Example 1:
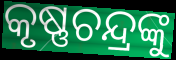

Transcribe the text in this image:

କୃଷ୍ଣଚନ୍ଦ୍ରଙ୍କୁ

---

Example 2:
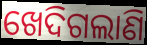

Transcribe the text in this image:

ଖେଦିଗଲାଣି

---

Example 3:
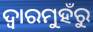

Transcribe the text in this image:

ଦ୍ଵାରମୁହଁରୁ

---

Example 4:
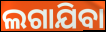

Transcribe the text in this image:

ଲଗାଯିବା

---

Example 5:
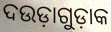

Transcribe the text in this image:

ଦଉଡ଼ାଗୁଡ଼ାକ